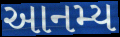
આનમ્ય